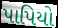
પાપિયો